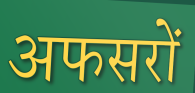
अफसरों